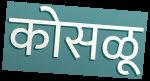
कोसळू